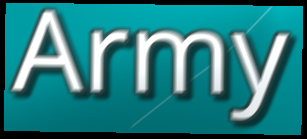
Army